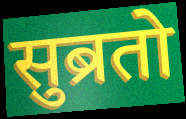
सुब्रतो